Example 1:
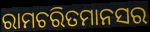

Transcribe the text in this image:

ରାମଚରିତମାନସର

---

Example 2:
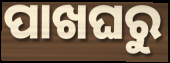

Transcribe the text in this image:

ପାଖଘରୁ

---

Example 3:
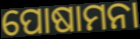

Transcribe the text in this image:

ପୋଷାମନା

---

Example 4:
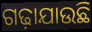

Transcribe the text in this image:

ଗଢ଼ାଯାଉଛି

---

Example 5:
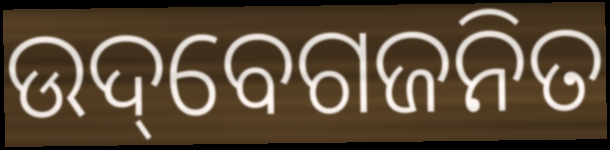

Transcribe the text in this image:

ଉଦ୍‌ବେଗଜନିତ